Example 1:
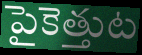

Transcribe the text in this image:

పైకెత్తుట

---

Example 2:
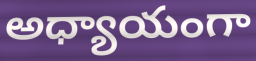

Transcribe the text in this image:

అధ్యాయంగా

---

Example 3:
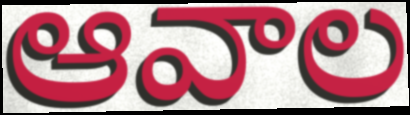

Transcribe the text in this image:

ఆవాల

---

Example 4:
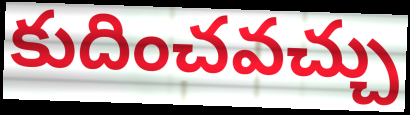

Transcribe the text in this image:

కుదించవచ్చు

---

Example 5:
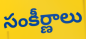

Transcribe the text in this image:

సంకీర్ణాలు